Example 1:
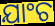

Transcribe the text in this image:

ଯାଂଚ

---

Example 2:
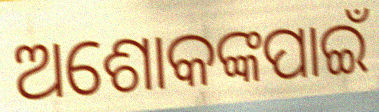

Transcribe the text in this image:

ଅଶୋକଙ୍କପାଇଁ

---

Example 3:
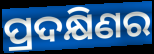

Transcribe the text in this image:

ପ୍ରଦକ୍ଷିଣର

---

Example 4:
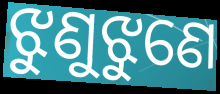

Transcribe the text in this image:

ଝୁଣୁଝୁଣେ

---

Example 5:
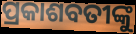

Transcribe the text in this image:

ପ୍ରକାଶବତୀଙ୍କୁ